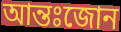
আন্তঃজোন